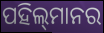
ପହିଲ୍‌ମାନର